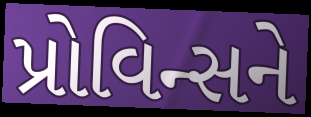
પ્રોવિન્સને